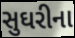
સુઘરીના